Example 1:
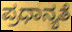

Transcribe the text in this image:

ಪ್ರಧಾನ್ಯತೆ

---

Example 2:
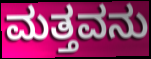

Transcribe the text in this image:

ಮತ್ತವನು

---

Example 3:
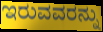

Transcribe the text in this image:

ಇರುವವರನ್ನು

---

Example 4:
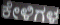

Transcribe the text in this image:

ಕೇಳಿಗಳ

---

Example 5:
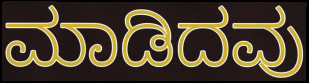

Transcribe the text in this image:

ಮಾಡಿದವು